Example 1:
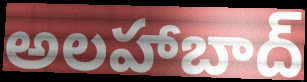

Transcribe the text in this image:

అలహాబాద్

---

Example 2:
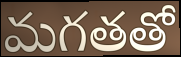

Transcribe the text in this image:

మగతతో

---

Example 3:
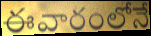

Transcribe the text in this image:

ఈవారంలోనే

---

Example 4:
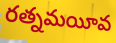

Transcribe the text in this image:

రత్నమయీవ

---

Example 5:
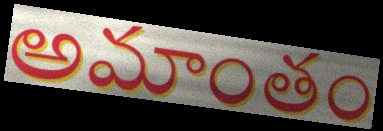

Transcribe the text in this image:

అమాంతం